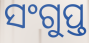
ସଂଗୁପ୍ତ